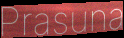
Prasuna